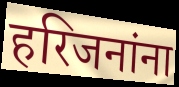
हरिजनांना